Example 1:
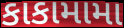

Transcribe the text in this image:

કાકામામા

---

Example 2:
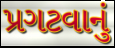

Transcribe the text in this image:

પ્રગટવાનું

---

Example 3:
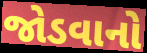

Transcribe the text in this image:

જોડવાનો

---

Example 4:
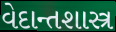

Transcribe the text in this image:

વેદાન્તશાસ્ત્ર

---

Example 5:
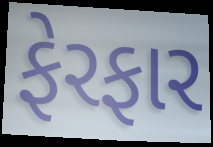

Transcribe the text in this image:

ફેરફાર